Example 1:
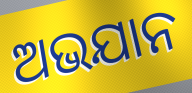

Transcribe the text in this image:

ଅଭଯାନ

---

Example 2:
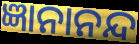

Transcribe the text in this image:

ଜ୍ଞାନାନନ୍ଦ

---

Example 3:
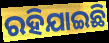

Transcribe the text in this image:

ରହିଯାଇଛି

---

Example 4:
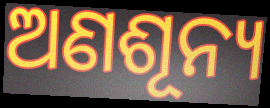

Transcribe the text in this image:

ଅଣଶୂନ୍ୟ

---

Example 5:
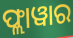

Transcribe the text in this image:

ଫ୍ଲାୱାର